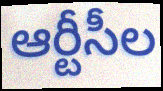
ఆర్టీసీల